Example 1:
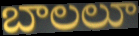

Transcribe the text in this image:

బాలలూ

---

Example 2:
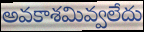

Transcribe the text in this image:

అవకాశమివ్వలేదు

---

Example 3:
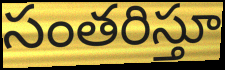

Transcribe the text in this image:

సంతరిస్తూ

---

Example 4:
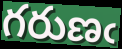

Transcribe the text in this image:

గరుణఁ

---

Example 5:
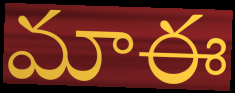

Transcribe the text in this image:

మాఈ